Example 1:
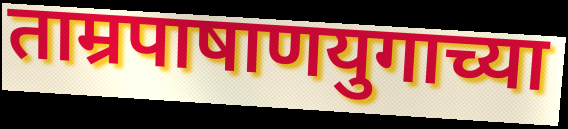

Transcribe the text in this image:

ताम्रपाषाणयुगाच्या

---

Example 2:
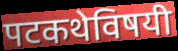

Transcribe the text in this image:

पटकथेविषयी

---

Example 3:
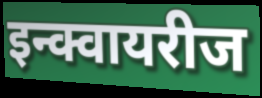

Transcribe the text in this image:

इन्क्वायरीज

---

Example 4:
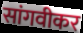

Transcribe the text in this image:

सांगवीकर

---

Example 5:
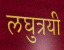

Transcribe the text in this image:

लघुत्रयी